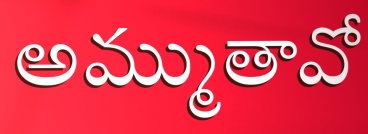
అమ్ముతావో